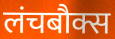
लंचबौक्स